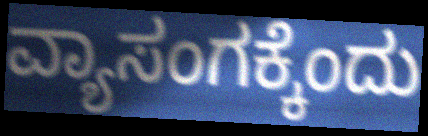
ವ್ಯಾಸಂಗಕ್ಕೆಂದು